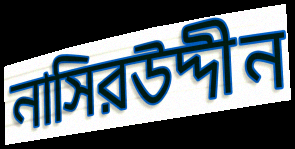
নাসিরউদ্দীন